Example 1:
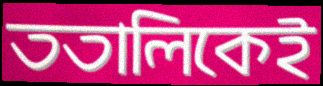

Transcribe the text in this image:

ততালিকেই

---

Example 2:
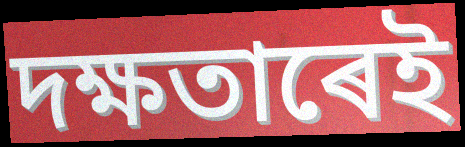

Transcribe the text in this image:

দক্ষতাৰেই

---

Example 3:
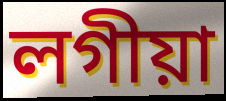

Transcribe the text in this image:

লগীয়া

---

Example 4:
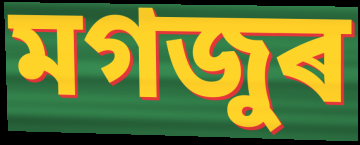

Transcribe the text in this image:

মগজুৰ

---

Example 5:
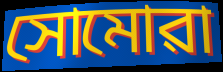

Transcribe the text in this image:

সোমোৱা